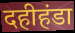
दहीहंडा